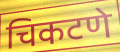
चिकटणे